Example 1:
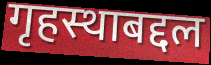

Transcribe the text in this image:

गृहस्थाबद्दल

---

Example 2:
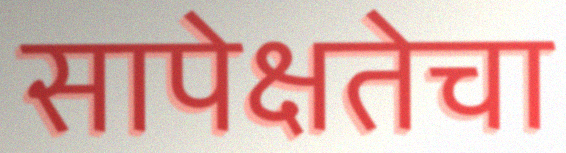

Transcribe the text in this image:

सापेक्षतेचा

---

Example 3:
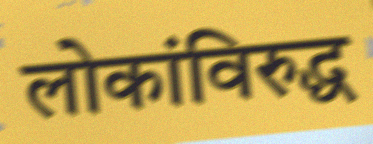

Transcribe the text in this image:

लोकांविरुद्ध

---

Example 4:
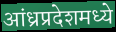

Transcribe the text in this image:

आंध्रप्रदेशमध्ये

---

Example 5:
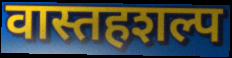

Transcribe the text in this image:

वास्तहशल्प